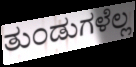
ತುಂಡುಗಳೆಲ್ಲ